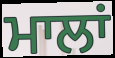
ਮਾਲਾਂ